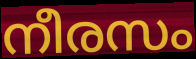
നീരസം